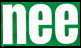
nee